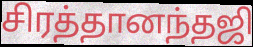
சிரத்தானந்தஜி